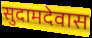
सुदामदेवास